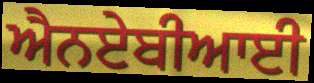
ਐਨਏਬੀਆਈ